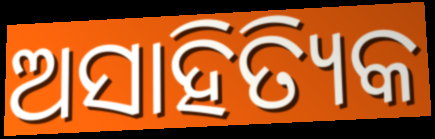
ଅସାହିତ୍ୟିକ